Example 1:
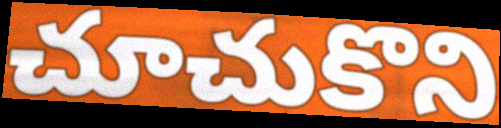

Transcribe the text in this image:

చూచుకొని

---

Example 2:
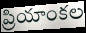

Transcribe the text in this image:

ప్రియాంకల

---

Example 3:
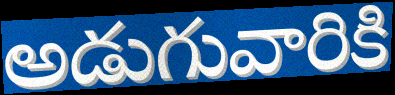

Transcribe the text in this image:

అడుగువారికి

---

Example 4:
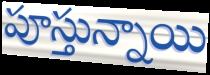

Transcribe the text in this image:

పూస్తున్నాయి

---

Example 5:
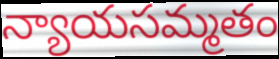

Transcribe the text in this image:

న్యాయసమ్మతం